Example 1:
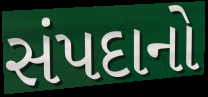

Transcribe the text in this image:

સંપદાનો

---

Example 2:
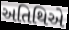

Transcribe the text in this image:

અતિથિએ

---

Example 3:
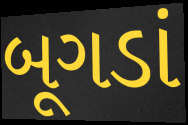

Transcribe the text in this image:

બૂગડાં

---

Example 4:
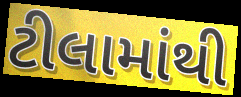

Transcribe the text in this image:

ટીલામાંથી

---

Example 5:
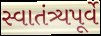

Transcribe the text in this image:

સ્વાતંત્ર્યપૂર્વે